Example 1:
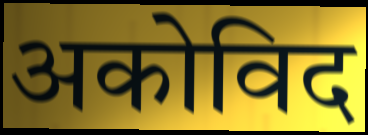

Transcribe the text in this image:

अकोविद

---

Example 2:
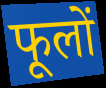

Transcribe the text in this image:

फूलों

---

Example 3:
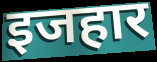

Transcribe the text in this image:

इजहार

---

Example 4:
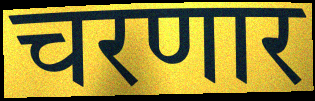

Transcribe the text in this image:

चरणार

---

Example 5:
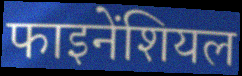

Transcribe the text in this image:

फाइनेंशियल